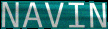
NAVIN